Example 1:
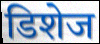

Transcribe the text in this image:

डिशेज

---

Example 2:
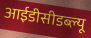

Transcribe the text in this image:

आईडीसीडब्ल्यू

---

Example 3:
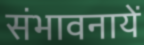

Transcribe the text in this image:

संभावनायें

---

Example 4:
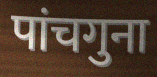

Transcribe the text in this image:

पांचगुना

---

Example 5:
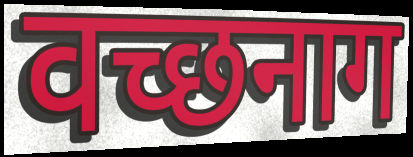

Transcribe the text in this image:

वच्छनाग